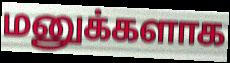
மனுக்களாக